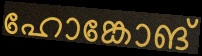
ഹോങ്കോങ്